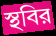
স্থবির